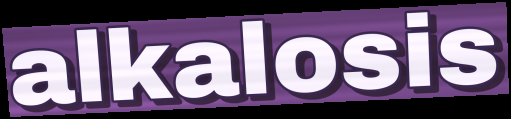
alkalosis